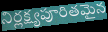
నిర్లక్ష్యపూరితమైన